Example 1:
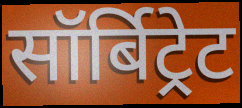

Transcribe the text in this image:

सॉर्बिट्रेट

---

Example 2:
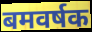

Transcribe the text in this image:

बमवर्षक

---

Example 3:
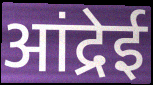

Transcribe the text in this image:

आंद्रेई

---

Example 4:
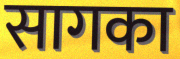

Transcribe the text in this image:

सागका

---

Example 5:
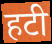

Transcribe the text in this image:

हटी